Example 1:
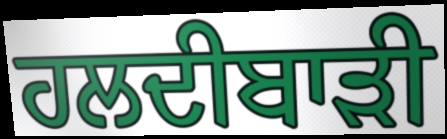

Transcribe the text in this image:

ਹਲਦੀਬਾੜੀ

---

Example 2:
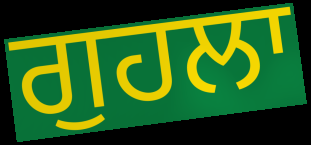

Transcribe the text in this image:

ਗੁਹਲਾ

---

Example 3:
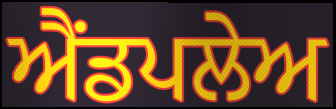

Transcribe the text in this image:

ਐਂਡਪਲੇਅ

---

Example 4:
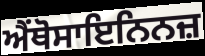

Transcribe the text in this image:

ਐਂਥੋਸਾਇਨਿਨਜ਼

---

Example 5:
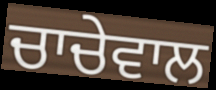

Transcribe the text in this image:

ਚਾਚੇਵਾਲ